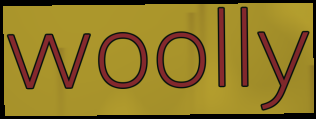
woolly